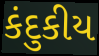
કંદુકીય